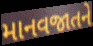
માનવજાતને